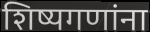
शिष्यगणांना